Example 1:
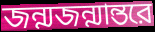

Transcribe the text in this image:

জন্মজন্মান্তরে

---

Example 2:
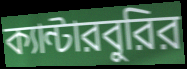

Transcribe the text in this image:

ক্যান্টারবুরির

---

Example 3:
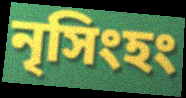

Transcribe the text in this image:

নৃসিংহং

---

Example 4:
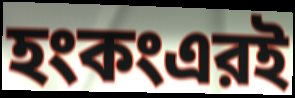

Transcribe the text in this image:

হংকংএরই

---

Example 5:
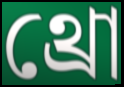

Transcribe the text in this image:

থ্রো